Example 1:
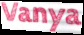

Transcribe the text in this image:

Vanya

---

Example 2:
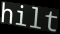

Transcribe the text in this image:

hilt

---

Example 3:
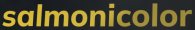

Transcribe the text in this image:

salmonicolor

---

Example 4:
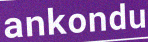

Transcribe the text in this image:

ankondu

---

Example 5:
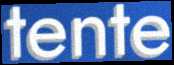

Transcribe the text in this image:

tente